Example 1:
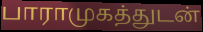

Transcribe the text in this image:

பாராமுகத்துடன்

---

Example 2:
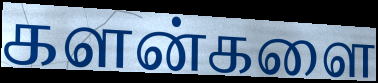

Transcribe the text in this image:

களன்களை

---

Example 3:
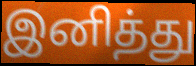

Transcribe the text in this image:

இனித்து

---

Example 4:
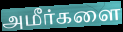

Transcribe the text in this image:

அமீர்களை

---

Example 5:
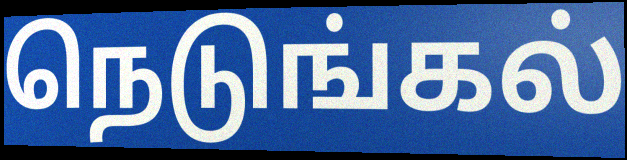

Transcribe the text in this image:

நெடுங்கல்